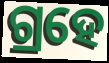
ଗ୍ରହେ